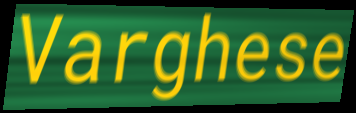
Varghese